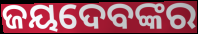
ଜୟଦେବଙ୍କର